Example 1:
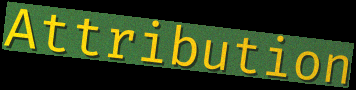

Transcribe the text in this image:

Attribution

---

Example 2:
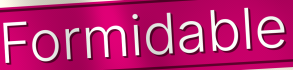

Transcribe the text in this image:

Formidable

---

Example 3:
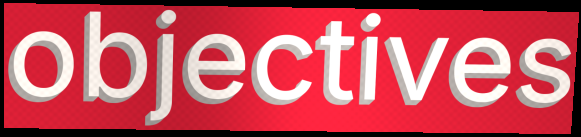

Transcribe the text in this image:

objectives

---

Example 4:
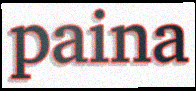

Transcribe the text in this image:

paina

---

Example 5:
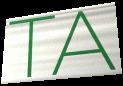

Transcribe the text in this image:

TA